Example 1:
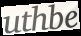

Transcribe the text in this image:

uthbe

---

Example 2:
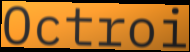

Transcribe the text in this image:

Octroi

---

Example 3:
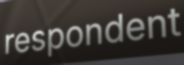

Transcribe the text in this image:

respondent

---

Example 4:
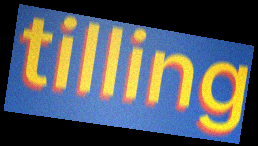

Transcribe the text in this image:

tilling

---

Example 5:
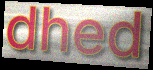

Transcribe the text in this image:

dhed